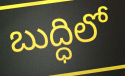
బుద్ధిలో